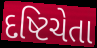
દષ્ટિચેતા